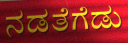
ನಡತೆಗೆಡು